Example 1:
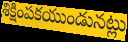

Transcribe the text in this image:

శిక్షింపకయుండునట్లు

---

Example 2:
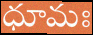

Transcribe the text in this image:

ధూమః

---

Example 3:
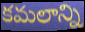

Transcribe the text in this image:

కమలాన్ని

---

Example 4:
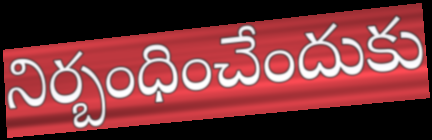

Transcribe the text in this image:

నిర్బంధించేందుకు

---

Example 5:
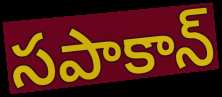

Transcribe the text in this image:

సపాకాన్